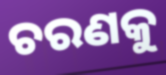
ଚରଣକୁ